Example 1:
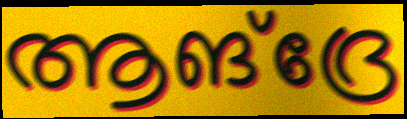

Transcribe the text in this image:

ആങ്ദ്രേ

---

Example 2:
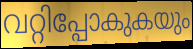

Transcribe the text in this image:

വറ്റിപ്പോകുകയും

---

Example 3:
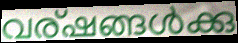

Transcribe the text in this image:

വര്ഷങ്ങൾക്കു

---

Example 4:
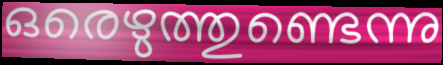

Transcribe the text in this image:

ഒരെഴുത്തുണ്ടെന്നു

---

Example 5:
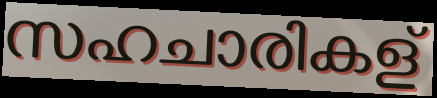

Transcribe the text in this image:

സഹചാരികള്